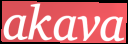
akava